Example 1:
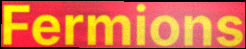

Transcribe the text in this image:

Fermions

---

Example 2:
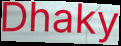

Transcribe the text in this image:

Dhaky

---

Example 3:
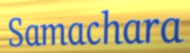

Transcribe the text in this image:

Samachara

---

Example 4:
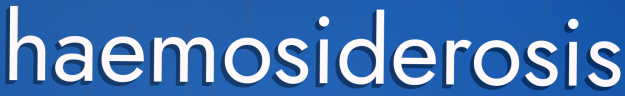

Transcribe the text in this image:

haemosiderosis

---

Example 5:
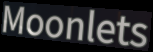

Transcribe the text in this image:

Moonlets